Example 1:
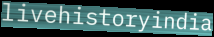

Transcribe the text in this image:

livehistoryindia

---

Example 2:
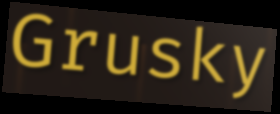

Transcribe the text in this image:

Grusky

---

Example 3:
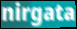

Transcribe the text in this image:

nirgata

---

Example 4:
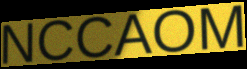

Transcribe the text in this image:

NCCAOM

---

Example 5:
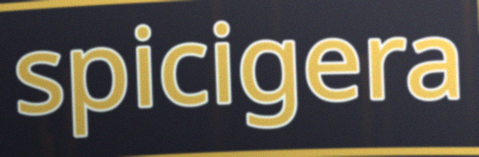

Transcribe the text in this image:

spicigera